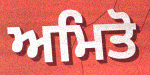
ਅਮਿਤੋ